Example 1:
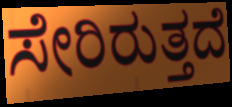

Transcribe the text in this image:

ಸೇರಿರುತ್ತದೆ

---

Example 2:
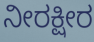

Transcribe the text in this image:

ನೀರಕ್ಷೀರ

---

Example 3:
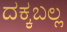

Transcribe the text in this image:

ದಕ್ಕಬಲ್ಲ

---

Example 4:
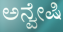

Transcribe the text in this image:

ಅನ್ವೇಷಿ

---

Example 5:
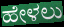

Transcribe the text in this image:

ಹೇಳಲು